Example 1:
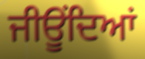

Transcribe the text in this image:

ਜੀਊਂਦਿਆਂ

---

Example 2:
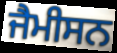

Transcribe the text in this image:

ਜੈਮੀਸਨ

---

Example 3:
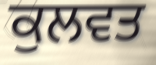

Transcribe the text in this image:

ਕੁਲਵਤ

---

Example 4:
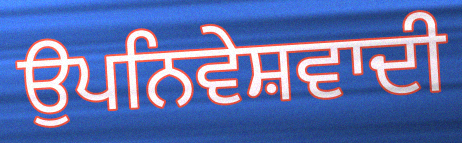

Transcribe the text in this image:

ਉਪਨਿਵੇਸ਼ਵਾਦੀ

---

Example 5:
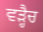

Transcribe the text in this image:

ਵੜ੍ਹੈਚ